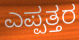
ಎಪ್ಪತ್ತರ